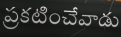
ప్రకటించేవాడు